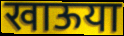
खाऊया